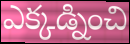
ఎక్కడ్నించి